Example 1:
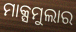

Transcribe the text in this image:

ମାକ୍ସମୁଲାର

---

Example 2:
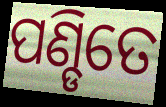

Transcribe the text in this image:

ପଣ୍ଡିତେ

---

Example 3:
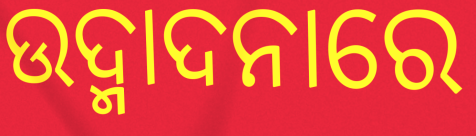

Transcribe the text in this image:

ଉଦ୍ମାଦନାରେ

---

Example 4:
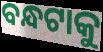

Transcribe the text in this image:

ବନ୍ଧଟାକୁ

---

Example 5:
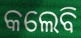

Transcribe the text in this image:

କଲେବି